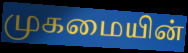
முகமையின்